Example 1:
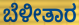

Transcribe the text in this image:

ಬೆಳೀತಾರ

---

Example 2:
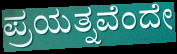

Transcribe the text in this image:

ಪ್ರಯತ್ನವೆಂದೇ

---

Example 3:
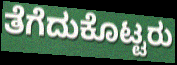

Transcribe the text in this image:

ತೆಗೆದುಕೊಟ್ಟರು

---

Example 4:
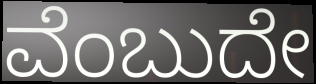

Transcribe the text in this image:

ವೆಂಬುದೇ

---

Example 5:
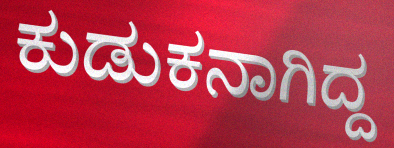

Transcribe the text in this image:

ಕುಡುಕನಾಗಿದ್ದ